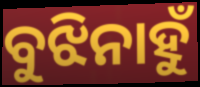
ବୁଝିନାହୁଁ